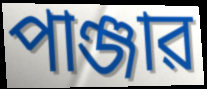
পাঞ্জাৱ